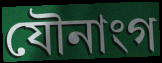
যৌনাংগ